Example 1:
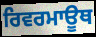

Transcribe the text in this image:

ਰਿਵਰਮਾਊਥ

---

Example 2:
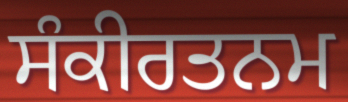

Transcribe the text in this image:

ਸੰਕੀਰਤਨਮ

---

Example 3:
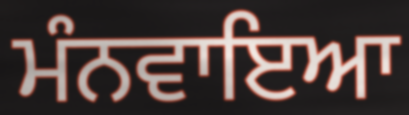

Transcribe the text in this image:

ਮੰਨਵਾਇਆ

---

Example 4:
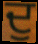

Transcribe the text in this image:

ਦੁ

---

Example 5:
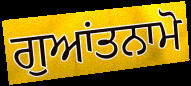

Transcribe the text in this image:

ਗੁਆਂਤਨਾਮੋ